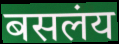
बसलंय